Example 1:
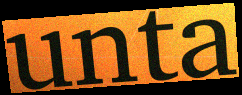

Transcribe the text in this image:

unta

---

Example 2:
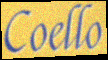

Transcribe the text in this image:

Coello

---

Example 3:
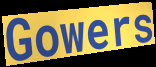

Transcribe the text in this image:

Gowers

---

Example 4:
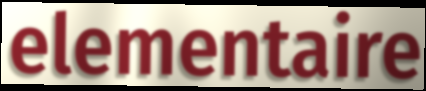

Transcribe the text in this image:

elementaire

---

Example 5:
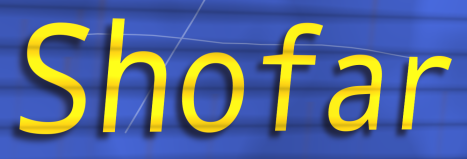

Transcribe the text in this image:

Shofar